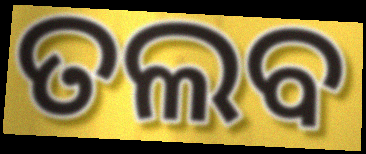
ତଲବ